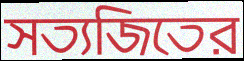
সত্যজিতের